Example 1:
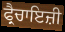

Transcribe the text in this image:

ਫ੍ਰੈਚਾਇਜ਼ੀ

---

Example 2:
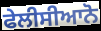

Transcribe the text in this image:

ਫੇਲੀਸੀਆਨੋ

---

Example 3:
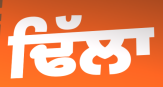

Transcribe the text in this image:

ਢਿੱਲਾ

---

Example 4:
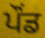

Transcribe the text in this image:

ਪੌਂਡ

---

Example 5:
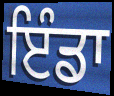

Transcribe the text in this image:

ਇੰਡਾ